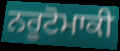
ਨਰੂਟੋਮਾਕੀ